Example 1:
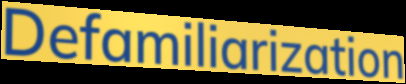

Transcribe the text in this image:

Defamiliarization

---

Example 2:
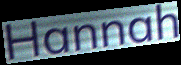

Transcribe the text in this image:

Hannah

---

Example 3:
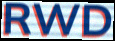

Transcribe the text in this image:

RWD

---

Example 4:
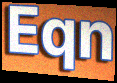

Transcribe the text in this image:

Eqn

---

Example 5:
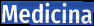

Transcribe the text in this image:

Medicina